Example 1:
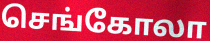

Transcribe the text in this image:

செங்கோலா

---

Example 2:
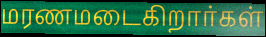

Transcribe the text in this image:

மரணமடைகிறார்கள்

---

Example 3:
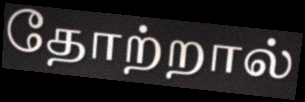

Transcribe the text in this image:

தோற்றால்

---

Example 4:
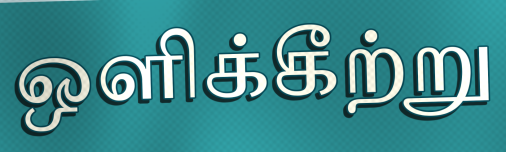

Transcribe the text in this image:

ஒளிக்கீற்று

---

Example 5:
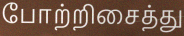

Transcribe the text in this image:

போற்றிசைத்து